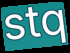
stq